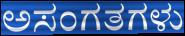
ಅಸಂಗತಗಳು